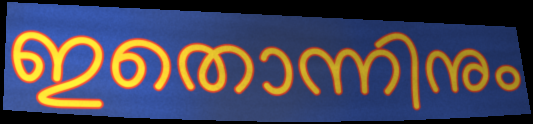
ഇതൊന്നിനും